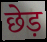
छेड़